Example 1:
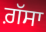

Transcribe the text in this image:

ਗ਼ੱਸਾ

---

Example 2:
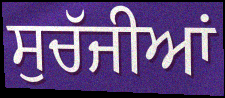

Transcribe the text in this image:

ਸੁਚੱਜੀਆਂ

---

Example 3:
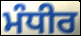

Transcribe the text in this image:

ਮੰਧੀਰ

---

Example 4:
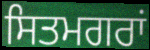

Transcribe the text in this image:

ਸਿਤਮਗਰਾਂ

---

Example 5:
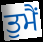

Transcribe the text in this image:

ਤੁਮੈਂ